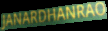
JANARDHANRAO